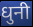
धुनी